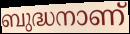
ബുദ്ധനാണ്